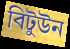
বিটুউন